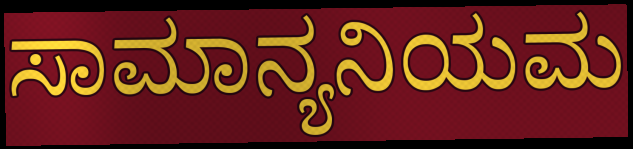
ಸಾಮಾನ್ಯನಿಯಮ